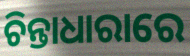
ଚିନ୍ତାଧାରାରେ